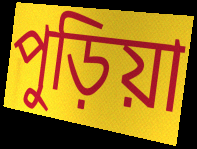
পুড়িয়া